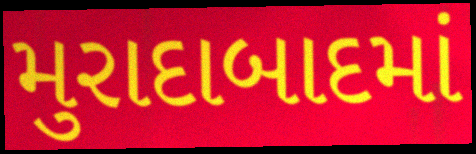
મુરાદાબાદમાં